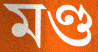
মণ্ড